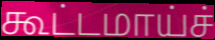
கூட்டமாய்ச்